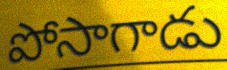
పోసాగాడు